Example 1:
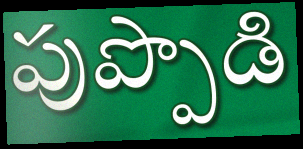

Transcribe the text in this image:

పుప్పొడి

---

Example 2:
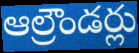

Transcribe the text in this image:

ఆల్రౌండర్లు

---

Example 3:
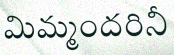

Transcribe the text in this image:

మిమ్మందరినీ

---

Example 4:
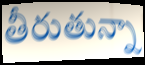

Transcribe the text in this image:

తీరుతున్నా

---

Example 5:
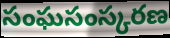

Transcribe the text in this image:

సంఘసంస్కరణ